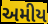
અમીય